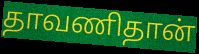
தாவணிதான்